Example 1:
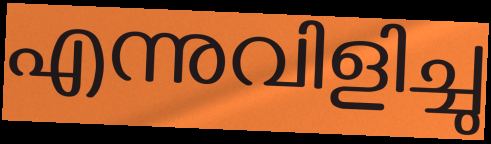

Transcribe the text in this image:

എന്നുവിളിച്ചു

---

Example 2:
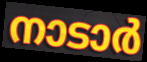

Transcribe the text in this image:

നാടാർ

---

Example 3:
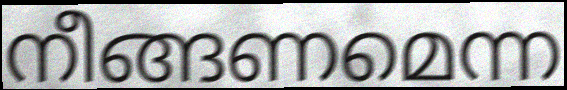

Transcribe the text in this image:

നീങ്ങണമെന്ന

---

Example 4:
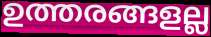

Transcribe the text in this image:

ഉത്തരങ്ങളല്ല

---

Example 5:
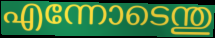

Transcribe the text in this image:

എന്നോടെന്തു